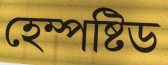
হেম্পষ্টিড